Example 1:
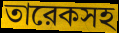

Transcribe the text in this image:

তারেকসহ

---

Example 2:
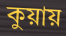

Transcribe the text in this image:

কুয়ায়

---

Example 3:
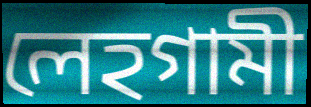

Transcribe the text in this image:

লেহগামী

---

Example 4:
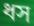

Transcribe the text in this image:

ধস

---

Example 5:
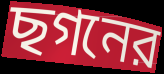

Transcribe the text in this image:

ছগনের